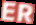
ER